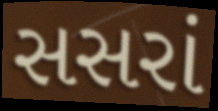
સસરાં